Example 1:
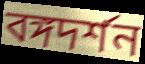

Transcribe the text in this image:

বঙ্গদর্শন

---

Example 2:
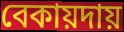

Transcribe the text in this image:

বেকায়দায়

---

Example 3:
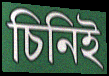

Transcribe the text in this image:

চিনিই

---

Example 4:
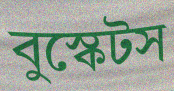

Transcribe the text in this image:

বুস্কেটস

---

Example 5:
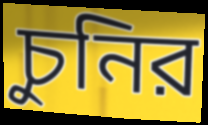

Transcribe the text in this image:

চুনির